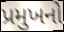
પ્રમુખનો